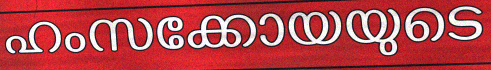
ഹംസക്കോയയുടെ